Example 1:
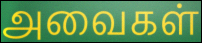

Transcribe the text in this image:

அவைகள்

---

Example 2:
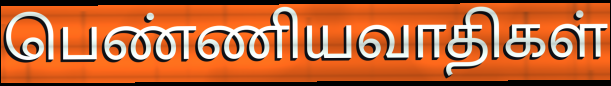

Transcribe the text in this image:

பெண்ணியவாதிகள்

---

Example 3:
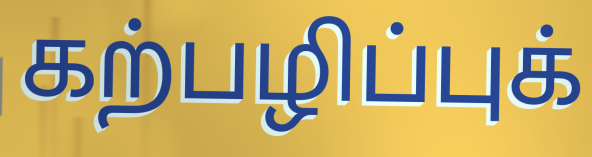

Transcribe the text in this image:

கற்பழிப்புக்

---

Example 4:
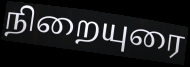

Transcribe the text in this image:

நிறையுரை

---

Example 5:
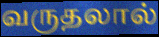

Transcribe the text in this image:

வருதலால்